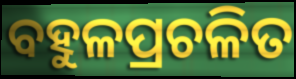
ବହୁଳପ୍ରଚଳିତ